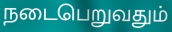
நடைபெறுவதும்